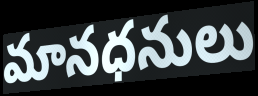
మానధనులు